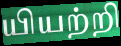
யியற்றி